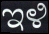
ಇಳಿ